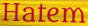
Hatem